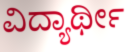
ವಿದ್ಯಾರ್ಥೀ